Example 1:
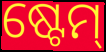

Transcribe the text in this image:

ଷ୍ଟେମ୍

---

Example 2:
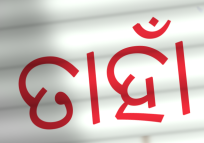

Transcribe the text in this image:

ତାହାଁ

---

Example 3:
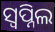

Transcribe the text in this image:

ସ୍ୱପ୍ନିଲ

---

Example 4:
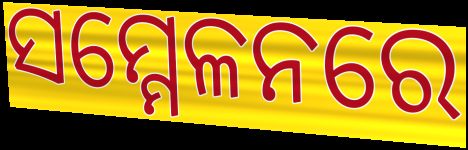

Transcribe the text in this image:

ସମ୍ମେଳନରେ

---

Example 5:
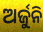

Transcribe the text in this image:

ଅର୍ଜୁନି